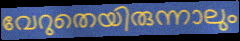
വേറുതെയിരുന്നാലും